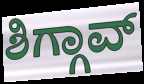
ಶಿಗ್ಗಾವ್